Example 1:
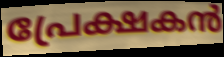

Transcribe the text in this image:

പ്രേക്ഷകൻ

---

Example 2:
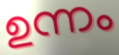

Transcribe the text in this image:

ഉന്നം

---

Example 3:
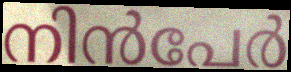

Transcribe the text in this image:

നിൻപേർ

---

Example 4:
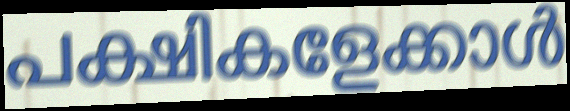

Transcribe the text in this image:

പക്ഷികളേക്കാൾ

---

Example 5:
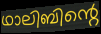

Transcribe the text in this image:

ഥാലിബിന്റെ